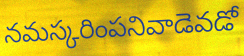
నమస్కరింపనివాడెవడో